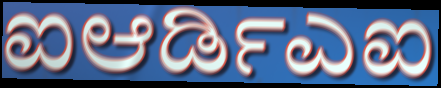
ಐಆರ್ಡಿಎಐ